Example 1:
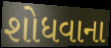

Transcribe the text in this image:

શોધવાના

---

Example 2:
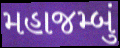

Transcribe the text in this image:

મહાજમ્બું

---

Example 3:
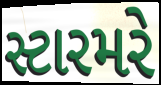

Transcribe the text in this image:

સ્ટારમરે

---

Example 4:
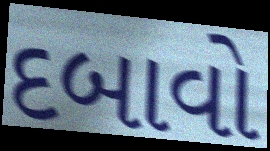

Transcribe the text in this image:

દબાવો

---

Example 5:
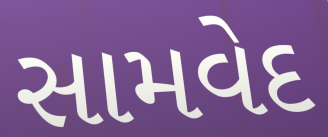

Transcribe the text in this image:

સામવેદ